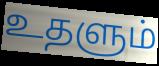
உதளும்